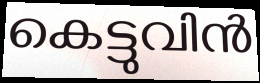
കെട്ടുവിൻ